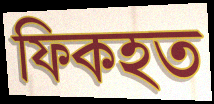
ফিকহত